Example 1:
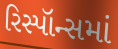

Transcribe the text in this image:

રિસ્પૉન્સમાં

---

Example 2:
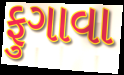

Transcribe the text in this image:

ફુગાવા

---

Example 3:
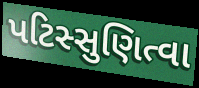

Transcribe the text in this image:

પટિસ્સુણિત્વા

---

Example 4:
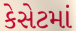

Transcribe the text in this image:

કેસેટમાં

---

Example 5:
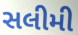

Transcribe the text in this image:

સલીમી